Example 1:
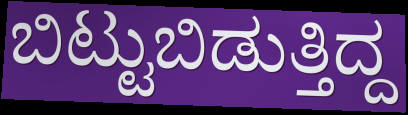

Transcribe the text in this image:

ಬಿಟ್ಟುಬಿಡುತ್ತಿದ್ದ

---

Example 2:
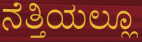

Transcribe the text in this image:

ನೆತ್ತಿಯಲ್ಲೂ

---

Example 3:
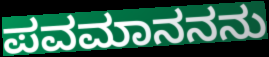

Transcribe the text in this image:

ಪವಮಾನನನು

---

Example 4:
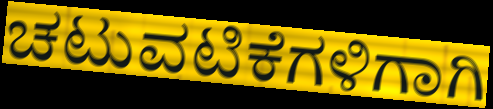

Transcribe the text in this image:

ಚಟುವಟಿಕೆಗಳಿಗಾಗಿ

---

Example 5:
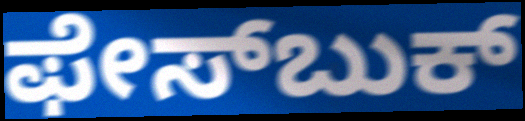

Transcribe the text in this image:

ಫೇಸ್‍ಬುಕ್